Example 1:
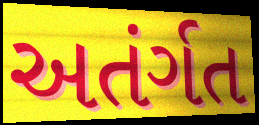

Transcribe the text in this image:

અતંર્ગત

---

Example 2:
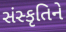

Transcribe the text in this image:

સંસ્કૃતિને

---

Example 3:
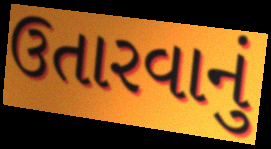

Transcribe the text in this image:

ઉતારવાનું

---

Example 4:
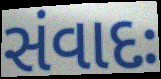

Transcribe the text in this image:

સંવાદઃ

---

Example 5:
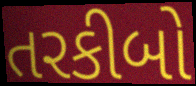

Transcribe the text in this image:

તરકીબો